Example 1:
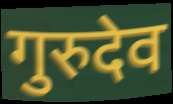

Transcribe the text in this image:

गुरुदेव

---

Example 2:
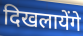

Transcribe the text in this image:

दिखलायेंगे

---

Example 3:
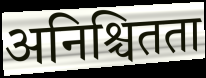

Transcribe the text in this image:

अनिश्चितता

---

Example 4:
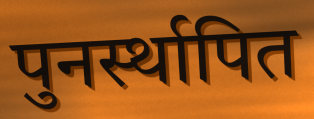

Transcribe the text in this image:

पुनर्स्‍थापित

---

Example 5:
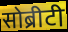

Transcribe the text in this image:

सोब्रीटी